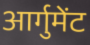
आर्गुमेंट